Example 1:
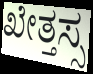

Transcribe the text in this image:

ಖೇತ್ತಸ್ಸ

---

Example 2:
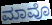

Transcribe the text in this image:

ಮಾವೊ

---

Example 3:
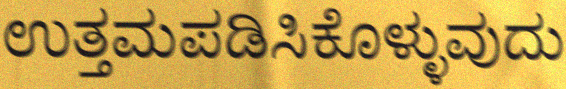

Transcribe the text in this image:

ಉತ್ತಮಪಡಿಸಿಕೊಳ್ಳುವುದು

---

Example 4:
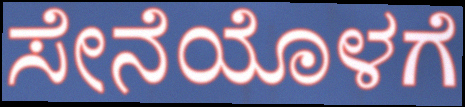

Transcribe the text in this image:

ಸೇನೆಯೊಳಗೆ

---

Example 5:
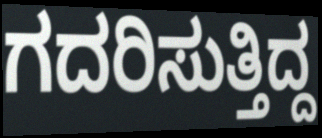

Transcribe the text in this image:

ಗದರಿಸುತ್ತಿದ್ದ